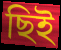
ছিই